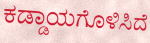
ಕಡ್ಡಾಯಗೊಳಿಸಿದೆ